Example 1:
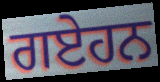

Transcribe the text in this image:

ਗਏਹਨ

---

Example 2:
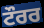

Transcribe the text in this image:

ਟੌਰਰ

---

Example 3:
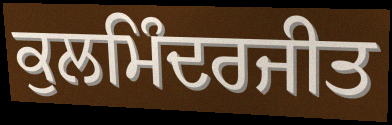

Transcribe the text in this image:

ਕੁਲਮਿੰਦਰਜੀਤ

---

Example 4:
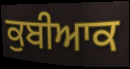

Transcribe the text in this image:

ਕੁਬੀਆਕ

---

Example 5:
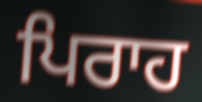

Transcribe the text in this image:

ਪਿਰਾਹ